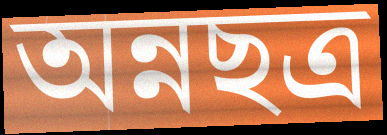
অন্নছত্র